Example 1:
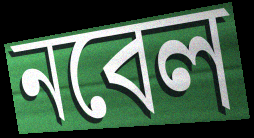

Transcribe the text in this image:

নবেল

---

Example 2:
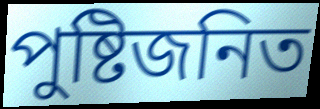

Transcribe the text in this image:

পুষ্টিজনিত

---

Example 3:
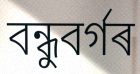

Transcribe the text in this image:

বন্ধুবৰ্গৰ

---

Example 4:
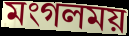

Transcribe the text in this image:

মংগলময়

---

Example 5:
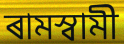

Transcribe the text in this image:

ৰামস্বামী